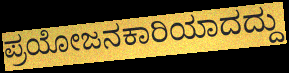
ಪ್ರಯೋಜನಕಾರಿಯಾದದ್ದು